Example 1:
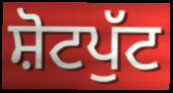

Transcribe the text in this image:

ਸ਼ੋਟਪੁੱਟ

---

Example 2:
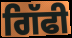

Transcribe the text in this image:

ਗਿੱਫੀ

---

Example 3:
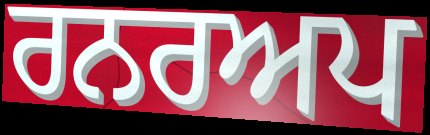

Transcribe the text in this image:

ਰਨਰਅਪ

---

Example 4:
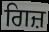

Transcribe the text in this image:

ਗਿਜ਼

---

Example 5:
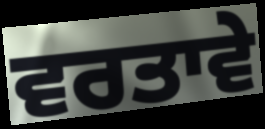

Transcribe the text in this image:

ਵਰਤਾਵੇ